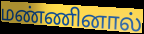
மண்ணினால்